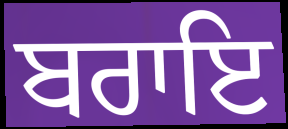
ਬਰਾਇ